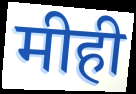
मीही